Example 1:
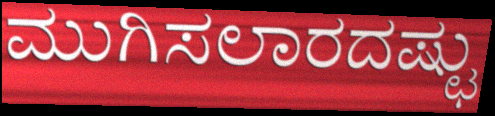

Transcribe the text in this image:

ಮುಗಿಸಲಾರದಷ್ಟು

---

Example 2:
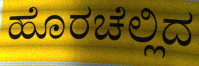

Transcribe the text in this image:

ಹೊರಚೆಲ್ಲಿದ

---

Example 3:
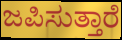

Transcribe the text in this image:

ಜಪಿಸುತ್ತಾರೆ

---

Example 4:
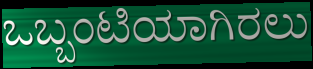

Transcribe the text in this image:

ಒಬ್ಬಂಟಿಯಾಗಿರಲು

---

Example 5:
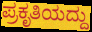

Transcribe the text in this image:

ಪ್ರಕೃತಿಯದ್ದು